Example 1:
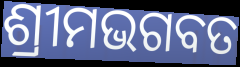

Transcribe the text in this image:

ଶ୍ରୀମଭଗବତ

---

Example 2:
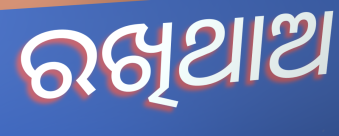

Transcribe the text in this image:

ରଖିଥାଅ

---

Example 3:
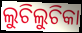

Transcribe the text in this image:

ଲୁଚିଲୁଚିକା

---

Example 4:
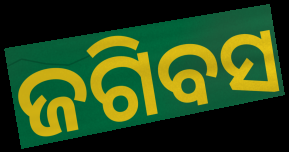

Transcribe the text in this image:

ଜଗିବସ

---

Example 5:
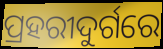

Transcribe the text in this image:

ପ୍ରହରୀଦୁର୍ଗରେ